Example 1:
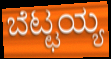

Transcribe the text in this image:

ಬೆಟ್ಟಯ್ಯ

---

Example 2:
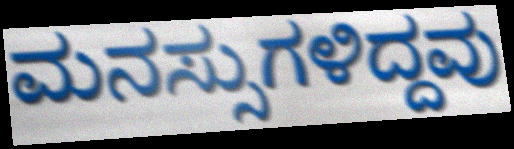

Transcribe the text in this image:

ಮನಸ್ಸುಗಳಿದ್ದವು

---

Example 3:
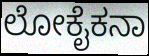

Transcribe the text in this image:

ಲೋಕೈಕನಾ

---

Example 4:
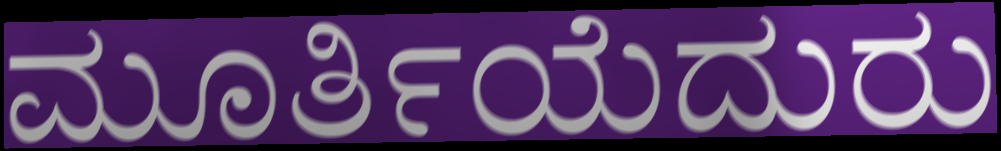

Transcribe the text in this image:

ಮೂರ್ತಿಯೆದುರು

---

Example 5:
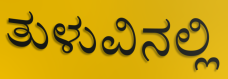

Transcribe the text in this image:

ತುಳುವಿನಲ್ಲಿ